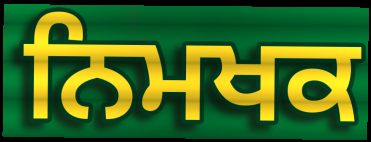
ਨਿਮਖਕ